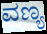
ವಣ್ಯ